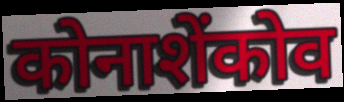
कोनाशेंकोव